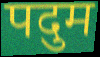
पदुम